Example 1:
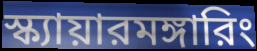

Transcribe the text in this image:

স্ক্যায়ারমঙ্গারিং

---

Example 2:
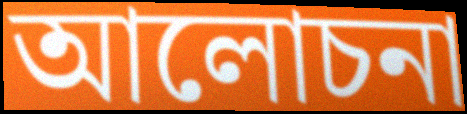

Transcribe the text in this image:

আলোচনা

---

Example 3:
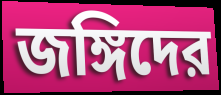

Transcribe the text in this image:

জঙ্গিদের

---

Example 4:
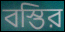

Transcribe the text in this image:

বস্তির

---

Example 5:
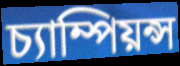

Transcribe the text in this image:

চ্যাম্পিয়ন্স